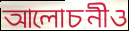
আলোচনীও